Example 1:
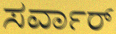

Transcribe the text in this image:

ಸರ್ವಾರ್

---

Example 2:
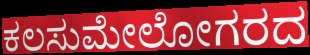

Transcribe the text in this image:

ಕಲಸುಮೇಲೋಗರದ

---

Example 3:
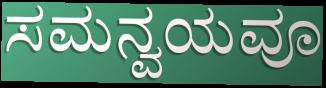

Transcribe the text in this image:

ಸಮನ್ವಯವೂ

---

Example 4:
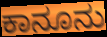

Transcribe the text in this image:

ಕಾನೂನು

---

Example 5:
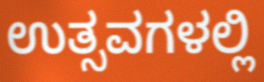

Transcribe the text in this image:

ಉತ್ಸವಗಳಲ್ಲಿ